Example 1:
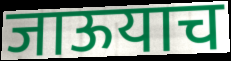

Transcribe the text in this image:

जाऊयाच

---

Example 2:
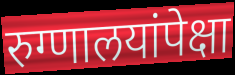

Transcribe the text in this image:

रुग्णालयांपेक्षा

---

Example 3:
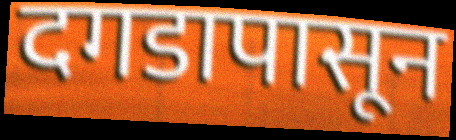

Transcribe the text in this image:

दगडापासून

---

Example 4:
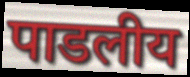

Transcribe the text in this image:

पाडलीय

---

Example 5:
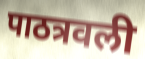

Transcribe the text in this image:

पाठत्रवली